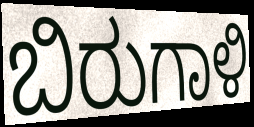
ಬಿರುಗಾಳಿ